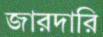
জারদারি